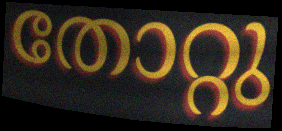
തോറ്റു